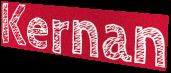
Kernan